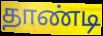
தாண்டி